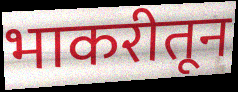
भाकरीतून